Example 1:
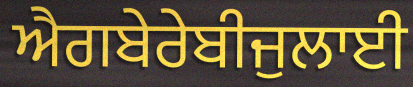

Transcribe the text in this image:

ਐਗਬੇਰੇਬੀਜੁਲਾਈ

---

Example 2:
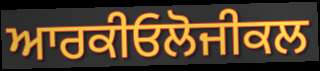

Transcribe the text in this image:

ਆਰਕੀਓਲੋਜੀਕਲ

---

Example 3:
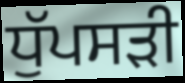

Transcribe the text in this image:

ਧੁੱਪਸੜੀ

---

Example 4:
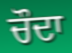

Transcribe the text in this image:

ਚੌਦਾ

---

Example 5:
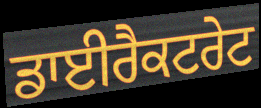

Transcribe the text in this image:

ਡਾਈਰੈਕਟਰੇਟ